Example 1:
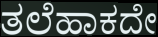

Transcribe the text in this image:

ತಲೆಹಾಕದೇ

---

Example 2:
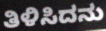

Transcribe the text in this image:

ತಿಳಿಸಿದನು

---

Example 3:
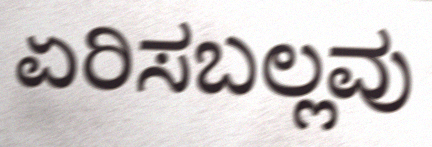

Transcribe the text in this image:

ಏರಿಸಬಲ್ಲವು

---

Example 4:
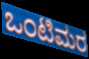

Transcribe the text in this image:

ಒಂಟಿಮರ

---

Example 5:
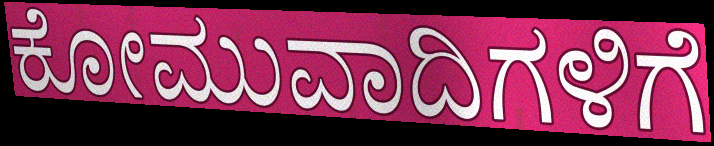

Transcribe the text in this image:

ಕೋಮುವಾದಿಗಳಿಗೆ